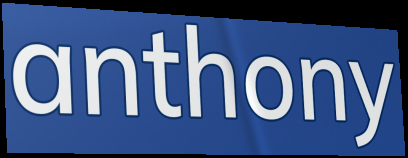
anthony